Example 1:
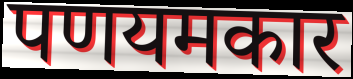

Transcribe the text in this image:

पणयमकार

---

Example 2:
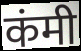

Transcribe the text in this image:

कंमी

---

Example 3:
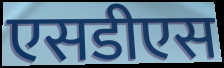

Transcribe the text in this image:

एसडीएस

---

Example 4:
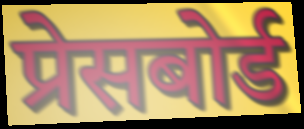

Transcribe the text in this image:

प्रेसबोर्ड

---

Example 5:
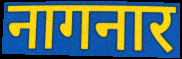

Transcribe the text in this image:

नागनार